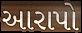
આરાપો